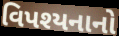
વિપશ્યનાનો